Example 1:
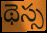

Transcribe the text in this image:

థెస్స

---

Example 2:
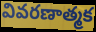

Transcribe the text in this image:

వివరణాత్మక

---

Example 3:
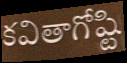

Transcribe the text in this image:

కవితాగోష్టి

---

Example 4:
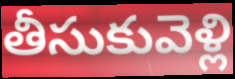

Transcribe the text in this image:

తీసుకువెళ్లి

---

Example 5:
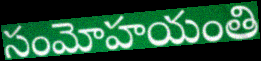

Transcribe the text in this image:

సంమోహయంతి